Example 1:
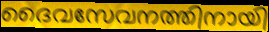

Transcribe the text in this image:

ദൈവസേവനത്തിനായി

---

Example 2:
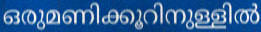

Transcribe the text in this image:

ഒരുമണിക്കൂറിനുള്ളിൽ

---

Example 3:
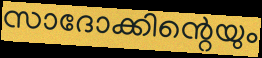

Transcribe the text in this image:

സാദോക്കിന്റെയും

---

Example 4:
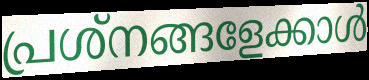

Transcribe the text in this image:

പ്രശ്നങ്ങളേക്കാൾ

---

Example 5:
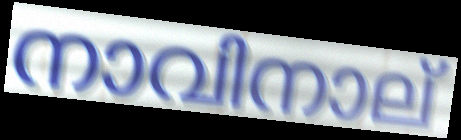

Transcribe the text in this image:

നാവിനാല്